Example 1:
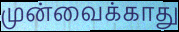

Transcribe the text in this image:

முன்வைக்காது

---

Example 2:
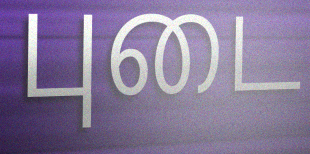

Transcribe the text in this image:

புடை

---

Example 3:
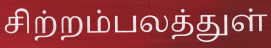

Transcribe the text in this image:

சிற்றம்பலத்துள்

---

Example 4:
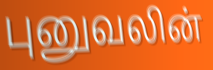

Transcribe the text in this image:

புனுவலின்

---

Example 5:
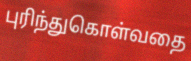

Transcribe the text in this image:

புரிந்துகொள்வதை